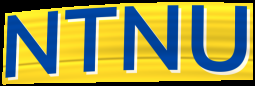
NTNU